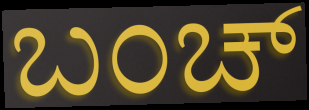
ಬಂಚ್